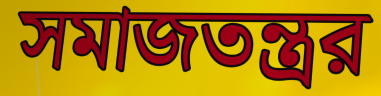
সমাজতন্ত্রর